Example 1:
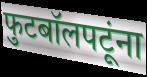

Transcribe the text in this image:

फुटबॉलपटूंना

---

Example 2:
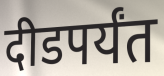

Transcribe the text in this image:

दीडपर्यंत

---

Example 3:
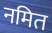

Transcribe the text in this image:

नमित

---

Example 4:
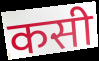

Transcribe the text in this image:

कसी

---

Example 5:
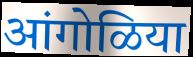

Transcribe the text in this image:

आंगोळिया